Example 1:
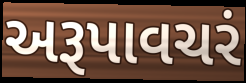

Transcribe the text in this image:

અરૂપાવચરં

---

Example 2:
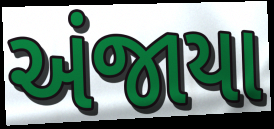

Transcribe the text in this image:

અંજાયા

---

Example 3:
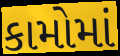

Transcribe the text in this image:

કામોમાં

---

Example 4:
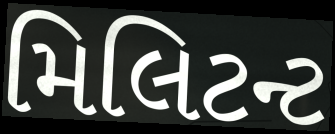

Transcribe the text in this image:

મિલિટન્ટ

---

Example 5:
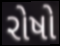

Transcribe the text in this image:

રોષો